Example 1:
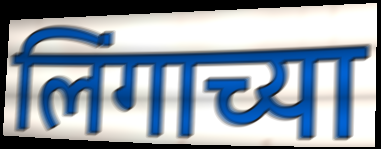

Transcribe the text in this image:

लिंगाच्या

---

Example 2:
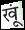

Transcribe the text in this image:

खूं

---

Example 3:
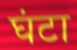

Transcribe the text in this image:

घंटा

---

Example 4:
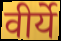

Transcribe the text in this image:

वीर्ये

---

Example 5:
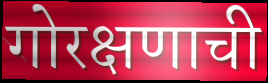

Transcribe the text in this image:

गोरक्षणाची